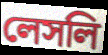
লেসলি